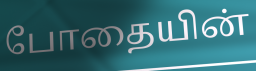
போதையின்